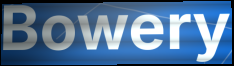
Bowery